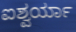
ಐಶ್ವರ್ಯಾ